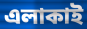
এলাকাই